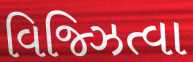
વિજ્ઝિત્વા